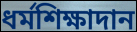
ধর্মশিক্ষাদান